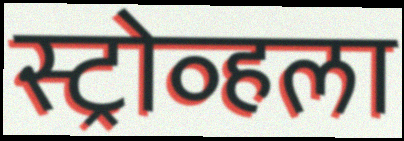
स्ट्रोव्हला